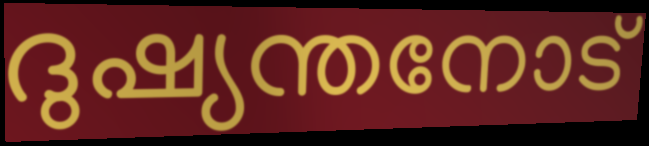
ദുഷ്യന്തനോട്